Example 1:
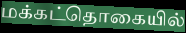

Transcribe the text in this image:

மக்கட்தொகையில்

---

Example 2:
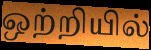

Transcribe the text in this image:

ஒற்றியில்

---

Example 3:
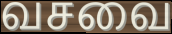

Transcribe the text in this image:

வசவை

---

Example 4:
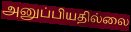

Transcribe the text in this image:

அனுப்பியதில்லை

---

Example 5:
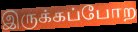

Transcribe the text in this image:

இருக்கப்போற